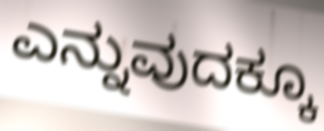
ಎನ್ನುವುದಕ್ಕೂ